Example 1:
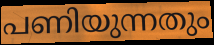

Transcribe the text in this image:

പണിയുന്നതും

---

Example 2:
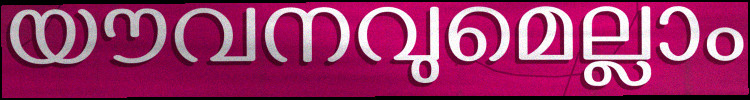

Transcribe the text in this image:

യൗവനവുമെല്ലാം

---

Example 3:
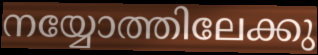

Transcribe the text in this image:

നയ്യോത്തിലേക്കു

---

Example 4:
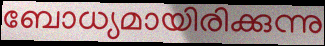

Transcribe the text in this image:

ബോധ്യമായിരിക്കുന്നു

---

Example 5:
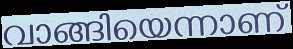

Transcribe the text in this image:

വാങ്ങിയെന്നാണ്